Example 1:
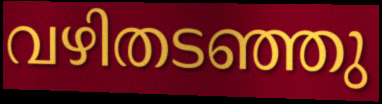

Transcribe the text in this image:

വഴിതടഞ്ഞു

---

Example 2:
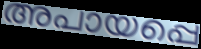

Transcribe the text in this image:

അപായപ്പെ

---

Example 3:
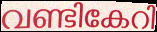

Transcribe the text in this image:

വണ്ടികേറി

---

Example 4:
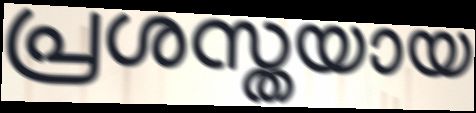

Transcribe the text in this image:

പ്രശസ്തയായ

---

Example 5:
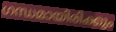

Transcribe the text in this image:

ഗന്ധമായിരിക്കും